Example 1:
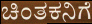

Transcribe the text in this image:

ಚಿಂತಕನಿಗೆ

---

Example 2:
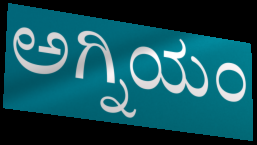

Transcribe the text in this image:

ಅಗ್ನಿಯಂ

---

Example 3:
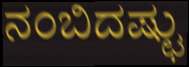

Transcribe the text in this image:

ನಂಬಿದಷ್ಟು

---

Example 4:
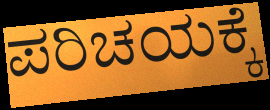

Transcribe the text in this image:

ಪರಿಚಯಕ್ಕೆ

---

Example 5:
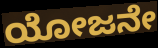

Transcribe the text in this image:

ಯೋಜನೇ